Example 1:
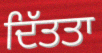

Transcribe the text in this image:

ਦਿੱਤਤਾ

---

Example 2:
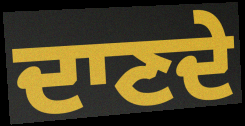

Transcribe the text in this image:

ਦਾਣਦੇ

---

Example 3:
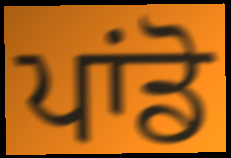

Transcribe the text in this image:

ਪਾਂਡੋ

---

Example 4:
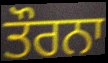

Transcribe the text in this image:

ਤੌਰਨਾ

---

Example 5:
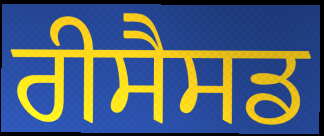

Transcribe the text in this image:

ਰੀਸੈਸਡ